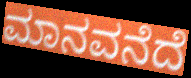
ಮಾನವನೆದೆ